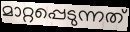
മാറ്റപ്പെടുന്നത്